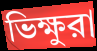
ভিক্ষুরা